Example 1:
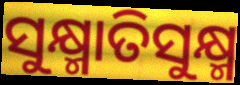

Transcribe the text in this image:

ସୁକ୍ଷ୍ମାତିସୁକ୍ଷ୍ମ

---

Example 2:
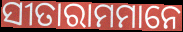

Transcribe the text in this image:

ସୀତାରାମମାନେ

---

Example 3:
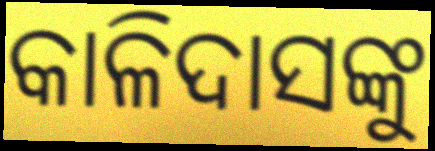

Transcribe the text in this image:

କାଳିଦାସଙ୍କୁ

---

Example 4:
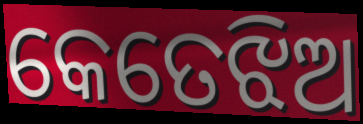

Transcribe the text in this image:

କେତେଝିଅ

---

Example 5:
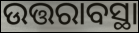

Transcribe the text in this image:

ଉତ୍ତରାବସ୍ଥା